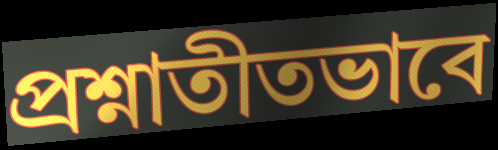
প্রশ্নাতীতভাবে